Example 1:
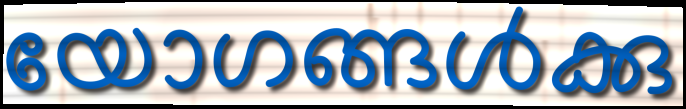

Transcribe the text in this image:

യോഗങ്ങൾക്കു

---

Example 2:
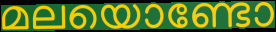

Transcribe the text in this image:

മലയൊണ്ടോ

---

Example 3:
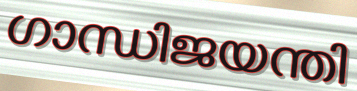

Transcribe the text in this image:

ഗാന്ധിജയന്തി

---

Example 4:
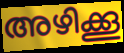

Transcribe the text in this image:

അഴിക്കൂ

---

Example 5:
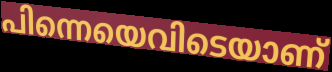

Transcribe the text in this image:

പിന്നെയെവിടെയാണ്